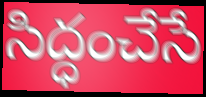
సిద్ధంచేసే